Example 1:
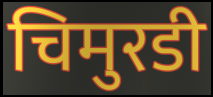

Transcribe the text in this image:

चिमुरडी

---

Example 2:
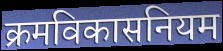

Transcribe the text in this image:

क्रमविकासनियम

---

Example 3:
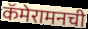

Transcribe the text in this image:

कॅमेरामनची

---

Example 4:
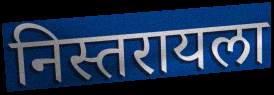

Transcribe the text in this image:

निस्तरायला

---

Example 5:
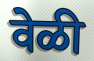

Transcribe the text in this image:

वेळी